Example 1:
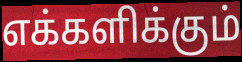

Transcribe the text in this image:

எக்களிக்கும்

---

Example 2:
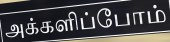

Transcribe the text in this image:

அக்களிப்போம்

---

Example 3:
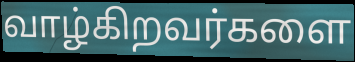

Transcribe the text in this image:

வாழ்கிறவர்களை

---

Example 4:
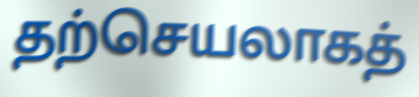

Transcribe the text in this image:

தற்செயலாகத்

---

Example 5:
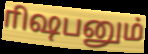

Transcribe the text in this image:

ரிஷபனும்